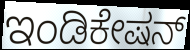
ಇಂಡಿಕೇಷನ್